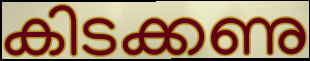
കിടക്കണു